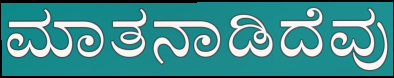
ಮಾತನಾಡಿದೆವು